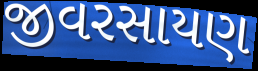
જીવરસાયણ